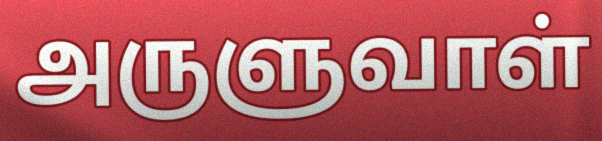
அருளுவாள்